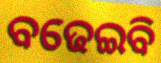
ବଢେଇବି